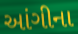
આંગીના